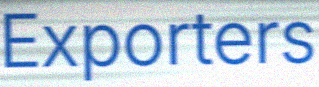
Exporters